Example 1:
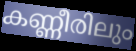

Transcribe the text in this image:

കണ്ണീരിലും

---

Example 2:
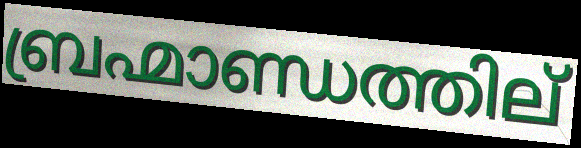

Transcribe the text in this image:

ബ്രഹ്മാണ്ഡത്തില്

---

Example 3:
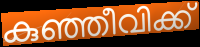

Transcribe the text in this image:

കുഞ്ഞീവിക്ക്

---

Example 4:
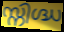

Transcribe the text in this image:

സ്നിഗ്ദ്ധ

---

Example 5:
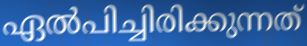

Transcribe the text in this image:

ഏൽപിച്ചിരിക്കുന്നത്